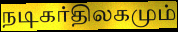
நடிகர்திலகமும்